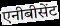
एनीबीसेंट